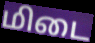
மிடை